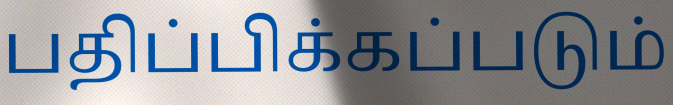
பதிப்பிக்கப்படும்